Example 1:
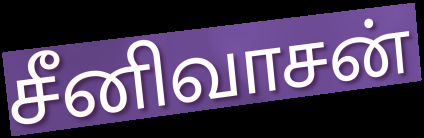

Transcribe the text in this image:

சீனிவாசன்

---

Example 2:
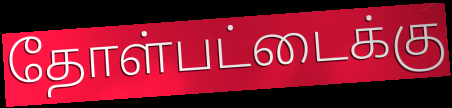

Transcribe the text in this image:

தோள்பட்டைக்கு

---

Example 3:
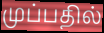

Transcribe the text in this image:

முப்பதில்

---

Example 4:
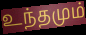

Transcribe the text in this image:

உந்தமும்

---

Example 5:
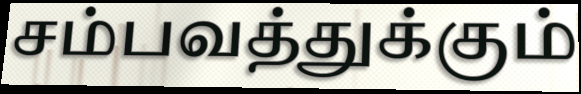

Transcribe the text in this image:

சம்பவத்துக்கும்